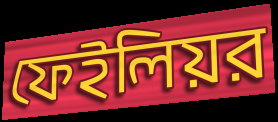
ফেইলিয়র